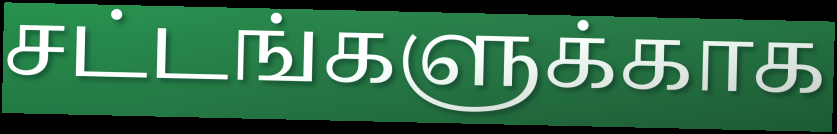
சட்டங்களுக்காக